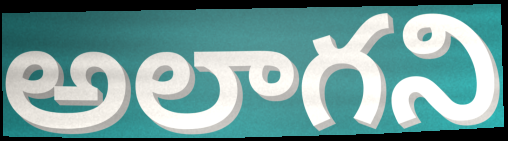
అలాగని